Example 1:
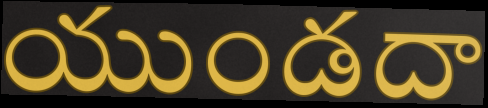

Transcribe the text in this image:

యుండదా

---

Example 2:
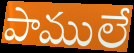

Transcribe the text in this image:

పాములే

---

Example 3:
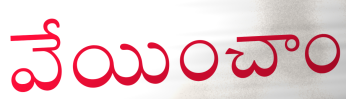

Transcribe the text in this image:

వేయించాం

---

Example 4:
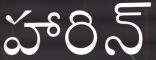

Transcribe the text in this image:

హారిన్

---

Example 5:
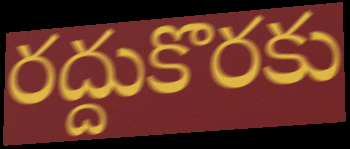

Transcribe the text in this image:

రద్దుకొరకు